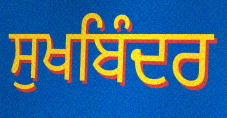
ਸੁਖਬਿੰਦਰ